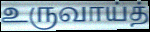
உருவாய்த்